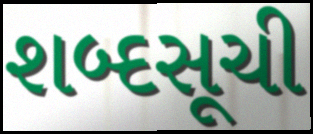
શબ્દસૂચી